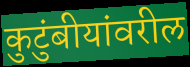
कुटुंबीयांवरील